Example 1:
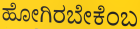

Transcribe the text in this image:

ಹೋಗಿರಬೇಕೆಂಬ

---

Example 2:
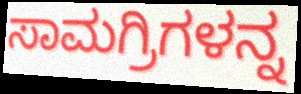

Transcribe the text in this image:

ಸಾಮಗ್ರಿಗಳನ್ನ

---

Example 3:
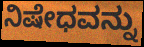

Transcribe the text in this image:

ನಿಷೇಧವನ್ನು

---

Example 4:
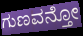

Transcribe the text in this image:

ಗುಣವನ್ತೋ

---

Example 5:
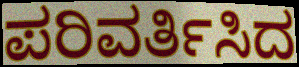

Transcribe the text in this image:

ಪರಿವರ್ತಿಸಿದ